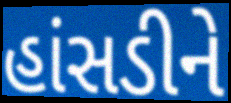
હાંસડીને